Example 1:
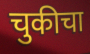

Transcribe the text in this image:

चुकीचा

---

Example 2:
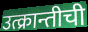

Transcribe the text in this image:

उत्क्रान्तीची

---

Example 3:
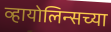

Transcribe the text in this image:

व्हायोलिन्सच्या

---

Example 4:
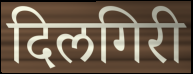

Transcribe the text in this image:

दिलगिरी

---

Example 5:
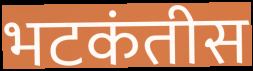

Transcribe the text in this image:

भटकंतीस